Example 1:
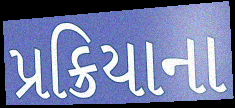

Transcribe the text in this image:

પ્રક્રિયાના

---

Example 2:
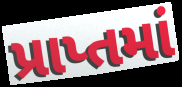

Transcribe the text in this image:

પ્રાપ્તમાં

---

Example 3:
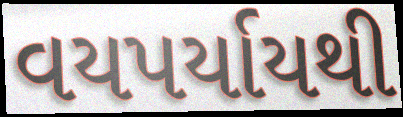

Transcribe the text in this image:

વયપર્યાયથી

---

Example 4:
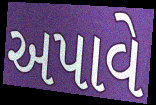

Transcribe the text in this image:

અપાવે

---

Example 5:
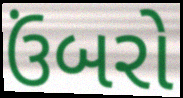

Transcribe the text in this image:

ઉંબરો